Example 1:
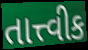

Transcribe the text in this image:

તાત્ત્વીક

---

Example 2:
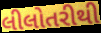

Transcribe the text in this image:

લીલોતરીથી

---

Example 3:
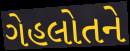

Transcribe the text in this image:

ગેહલોતને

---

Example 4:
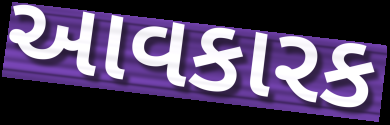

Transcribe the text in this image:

આવકારક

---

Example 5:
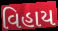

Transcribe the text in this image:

વિહાય